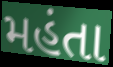
મહંતા